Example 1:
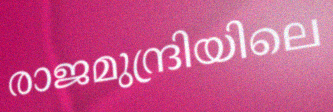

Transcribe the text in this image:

രാജമുന്ദ്രിയിലെ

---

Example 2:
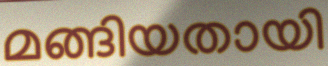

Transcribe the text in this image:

മങ്ങിയതായി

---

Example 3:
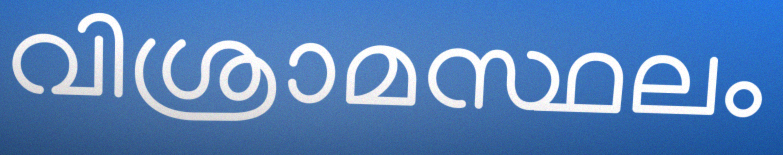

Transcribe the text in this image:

വിശ്രാമസ്ഥലം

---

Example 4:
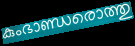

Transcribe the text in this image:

കുംഭാണ്ഡരൊത്തു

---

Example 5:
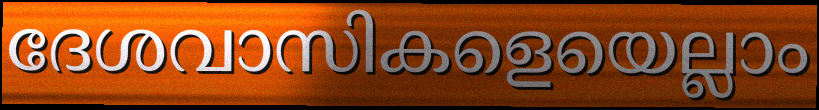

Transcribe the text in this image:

ദേശവാസികളെയെല്ലാം